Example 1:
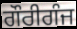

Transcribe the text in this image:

ਗੌਰੀਗੰਜ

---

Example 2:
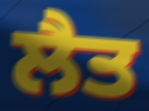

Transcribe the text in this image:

ਲੈਤ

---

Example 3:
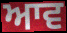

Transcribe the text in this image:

ਆਵ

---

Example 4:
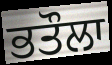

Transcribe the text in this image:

ਭਤੌਲਾ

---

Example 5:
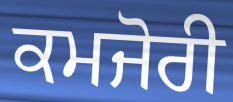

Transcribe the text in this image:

ਕਮਜੋਰੀ